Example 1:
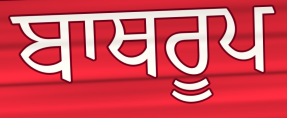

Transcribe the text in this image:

ਬਾਥਰੂਪ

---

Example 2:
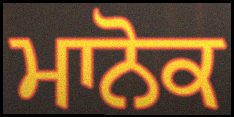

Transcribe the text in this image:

ਮਾਨੋਕ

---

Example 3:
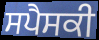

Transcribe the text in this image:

ਸਪੈਸਕੀ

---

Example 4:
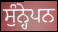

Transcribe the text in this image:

ਸੁੰਨ੍ਹੇਪਨ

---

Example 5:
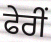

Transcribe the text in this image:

ਫੇਰੀਂ